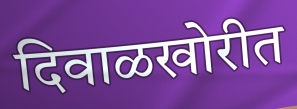
दिवाळखोरीत